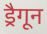
ड्रैगून